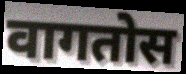
वागतोस